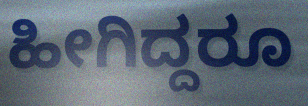
ಹೀಗಿದ್ದರೂ